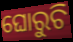
ଘୋରୁଚି